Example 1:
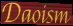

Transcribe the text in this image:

Daoism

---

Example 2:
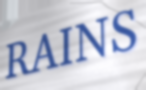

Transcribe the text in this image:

RAINS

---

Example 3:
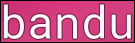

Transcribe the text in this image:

bandu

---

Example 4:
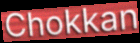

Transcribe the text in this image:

Chokkan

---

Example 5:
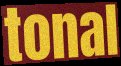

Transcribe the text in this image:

tonal